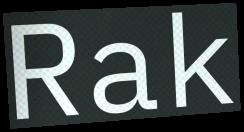
Rak